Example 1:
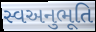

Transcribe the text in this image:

સ્વઅનુભૂતિ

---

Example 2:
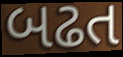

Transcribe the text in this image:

બઢત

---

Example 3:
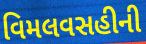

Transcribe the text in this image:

વિમલવસહીની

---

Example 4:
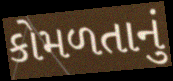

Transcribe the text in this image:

કોમળતાનું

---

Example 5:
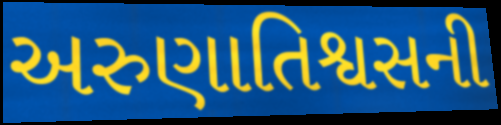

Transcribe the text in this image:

અરુણાતિશ્વસની